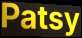
Patsy